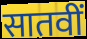
सातवीं